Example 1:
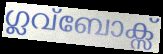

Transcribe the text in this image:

ഗ്ലവ്ബോക്സ്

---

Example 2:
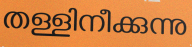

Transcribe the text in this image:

തള്ളിനീക്കുന്നു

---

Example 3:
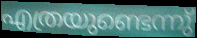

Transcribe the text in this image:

എത്രയുണ്ടെന്നു്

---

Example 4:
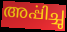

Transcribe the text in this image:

അൎപ്പിച്ചു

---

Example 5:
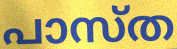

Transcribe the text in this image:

പാസ്ത